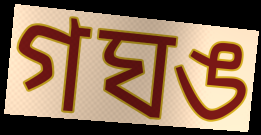
গঘঙ